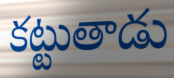
కట్టుతాడు